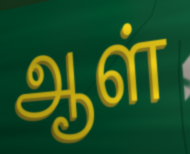
ஆள்